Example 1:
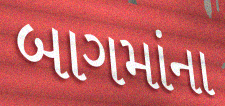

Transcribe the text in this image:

બાગમાંના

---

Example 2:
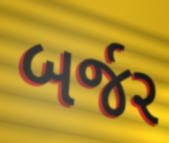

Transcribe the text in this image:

બર્જર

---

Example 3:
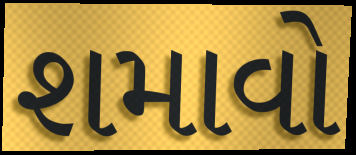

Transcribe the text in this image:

શમાવો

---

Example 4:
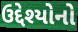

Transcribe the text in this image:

ઉદ્દેશ્યોનો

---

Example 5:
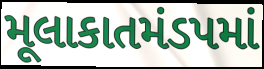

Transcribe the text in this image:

મૂલાકાતમંડપમાં